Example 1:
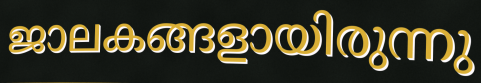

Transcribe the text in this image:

ജാലകങ്ങളായിരുന്നു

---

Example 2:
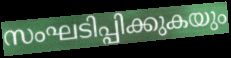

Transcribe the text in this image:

സംഘടിപ്പിക്കുകയും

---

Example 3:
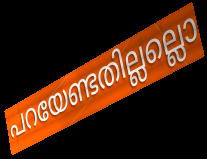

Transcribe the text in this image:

പറയേണ്ടതില്ലല്ലൊ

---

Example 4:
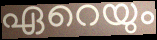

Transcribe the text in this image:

ഏറെയും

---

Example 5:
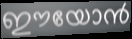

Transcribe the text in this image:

ഈയോൻ